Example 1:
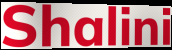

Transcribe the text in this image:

Shalini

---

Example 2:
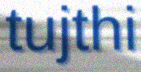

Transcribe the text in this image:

tujthi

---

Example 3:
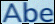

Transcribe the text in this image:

Abe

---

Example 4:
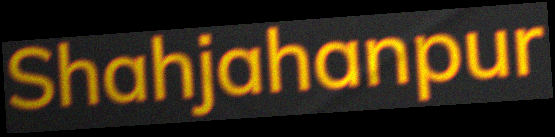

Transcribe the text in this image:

Shahjahanpur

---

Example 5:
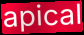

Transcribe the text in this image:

apical